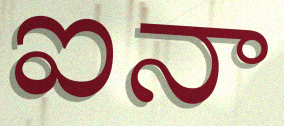
ఐనా